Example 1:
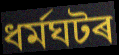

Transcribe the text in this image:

ধৰ্মঘটৰ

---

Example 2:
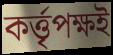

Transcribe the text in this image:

কৰ্ত্তৃপক্ষই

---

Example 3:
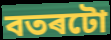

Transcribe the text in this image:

বতৰটো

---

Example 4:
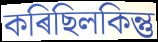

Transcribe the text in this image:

কৰিছিলকিন্তু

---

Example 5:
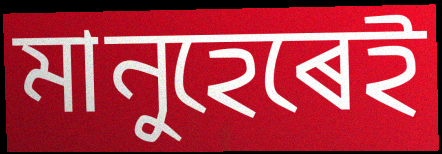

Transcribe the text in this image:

মানুহেৰেই